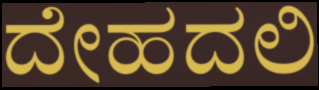
ದೇಹದಲಿ